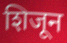
शिजून